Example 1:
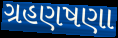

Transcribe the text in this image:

ગ્રહણષણા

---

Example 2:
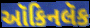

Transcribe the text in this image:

ઑકિનલૅક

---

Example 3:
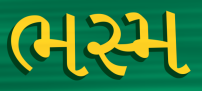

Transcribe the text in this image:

ભસ્મ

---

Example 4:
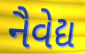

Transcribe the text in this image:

નૈવેદ્ય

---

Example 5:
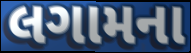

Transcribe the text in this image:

લગામના